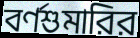
বর্ণশুমারির